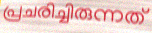
പ്രചരിച്ചിരുന്നത്